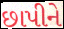
છાપીને